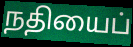
நதியைப்